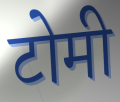
टोमी